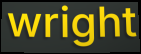
wright